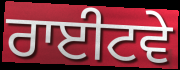
ਰਾਈਟਵੇ